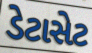
ડેટાસેટ